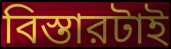
বিস্তারটাই